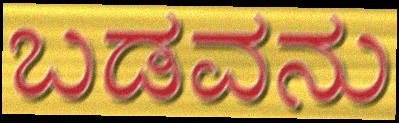
ಬಡವನು